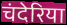
चंदेरिया